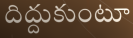
దిద్దుకుంటూ